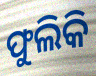
ଫୁଲିକି